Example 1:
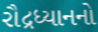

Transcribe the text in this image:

રૌદ્રધ્યાનનો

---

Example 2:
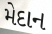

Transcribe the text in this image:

મેદાન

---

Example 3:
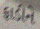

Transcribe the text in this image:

ફાડીને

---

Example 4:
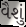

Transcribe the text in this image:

વૈશું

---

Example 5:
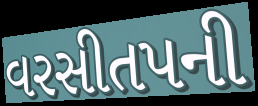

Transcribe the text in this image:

વરસીતપની